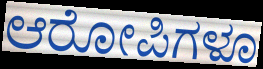
ಆರೋಪಿಗಳೂ